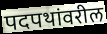
पदपथांवरील